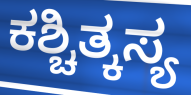
ಕಶ್ಚಿತ್ಕಸ್ಯ